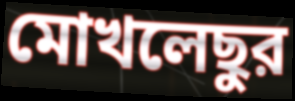
মোখলেছুর